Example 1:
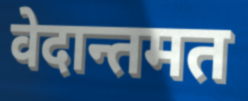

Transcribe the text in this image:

वेदान्तमत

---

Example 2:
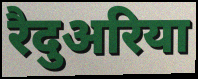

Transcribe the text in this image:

रैदुअरिया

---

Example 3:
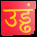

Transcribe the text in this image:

उड्ढं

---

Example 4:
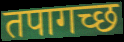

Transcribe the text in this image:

तपागच्छ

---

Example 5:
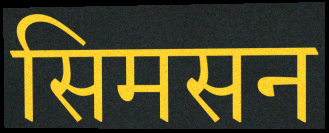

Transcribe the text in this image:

सिमसन